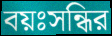
বয়ঃসন্ধির